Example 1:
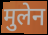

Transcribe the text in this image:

मुलेन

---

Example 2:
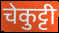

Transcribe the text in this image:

चेकुट्टी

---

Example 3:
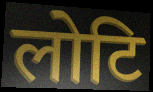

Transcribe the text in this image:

लोटि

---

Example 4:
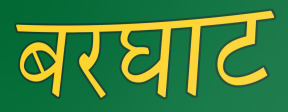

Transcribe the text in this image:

बरघाट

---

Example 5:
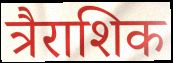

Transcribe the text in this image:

त्रैराशिक